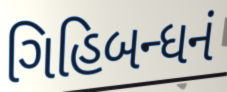
ગિહિબન્ધનં